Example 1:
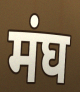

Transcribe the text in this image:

मंघ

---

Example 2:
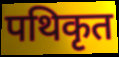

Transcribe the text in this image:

पथिकृत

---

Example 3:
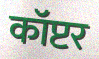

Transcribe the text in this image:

कॉप्टर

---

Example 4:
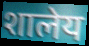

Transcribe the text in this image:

शालेय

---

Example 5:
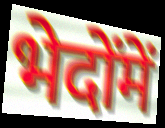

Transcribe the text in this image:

भेदोंमें